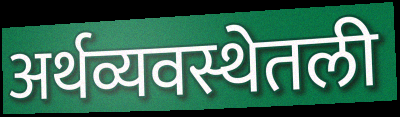
अर्थव्यवस्थेतली